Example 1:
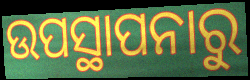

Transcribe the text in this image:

ଉପସ୍ଥାପନାରୁ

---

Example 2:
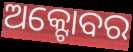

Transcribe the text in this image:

ଅକ୍ଟୋବର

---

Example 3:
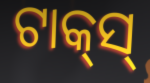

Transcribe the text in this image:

ଟାକ୍‍ସ୍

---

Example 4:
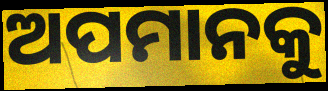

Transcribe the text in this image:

ଅପମାନକୁ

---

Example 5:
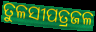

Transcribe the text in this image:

ତୁଳସୀପତ୍ରଜଳ